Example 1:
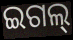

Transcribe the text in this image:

ଇଗଲ୍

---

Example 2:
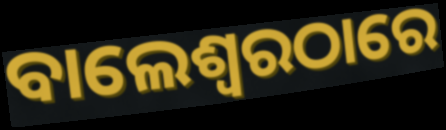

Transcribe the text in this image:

ବାଲେଶ୍ଵରଠାରେ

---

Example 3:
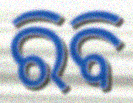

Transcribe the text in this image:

ରିବି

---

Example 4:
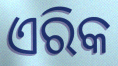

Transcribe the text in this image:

ଏରିକ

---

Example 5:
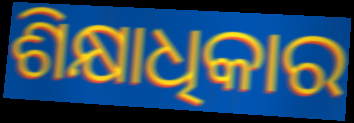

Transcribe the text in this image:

ଶିକ୍ଷାଧିକାର